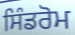
ਸਿੰਡਰੋਮ